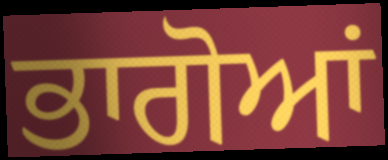
ਭਾਗੋਆਂ